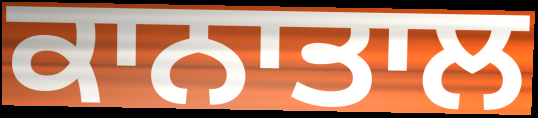
ਕਾਨਾਤਾਲ